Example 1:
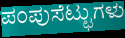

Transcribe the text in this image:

ಪಂಪುಸೆಟ್ಟುಗಳು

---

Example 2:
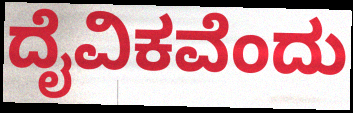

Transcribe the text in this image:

ದೈವಿಕವೆಂದು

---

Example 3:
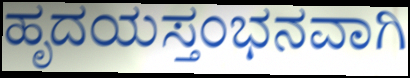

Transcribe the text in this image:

ಹೃದಯಸ್ತಂಭನವಾಗಿ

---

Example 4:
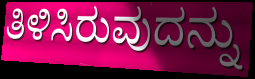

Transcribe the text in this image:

ತಿಳಿಸಿರುವುದನ್ನು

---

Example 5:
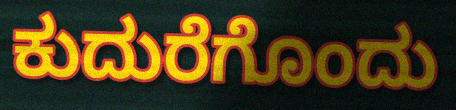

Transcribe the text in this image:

ಕುದುರೆಗೊಂದು